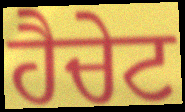
ਹੈਚੇਟ